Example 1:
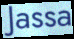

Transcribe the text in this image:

Jassa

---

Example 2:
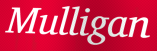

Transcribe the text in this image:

Mulligan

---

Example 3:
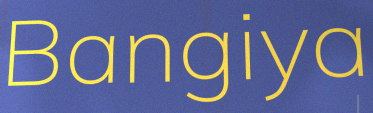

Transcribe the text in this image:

Bangiya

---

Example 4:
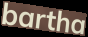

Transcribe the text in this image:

bartha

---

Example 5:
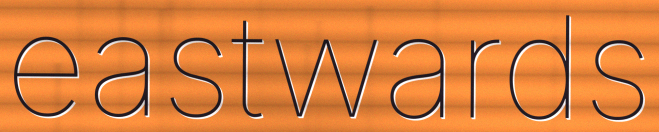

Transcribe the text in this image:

eastwards